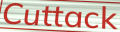
Cuttack